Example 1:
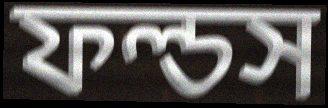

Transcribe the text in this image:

ফল্ডস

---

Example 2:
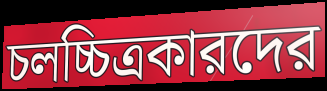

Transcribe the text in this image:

চলচ্চিত্রকারদের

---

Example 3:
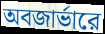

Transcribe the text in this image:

অবজার্ভারে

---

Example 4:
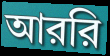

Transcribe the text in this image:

আররি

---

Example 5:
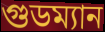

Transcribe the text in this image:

গুডম্যান